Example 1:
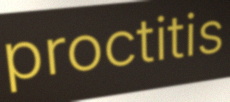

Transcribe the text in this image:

proctitis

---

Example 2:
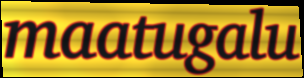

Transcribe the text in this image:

maatugalu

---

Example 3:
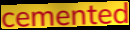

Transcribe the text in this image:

cemented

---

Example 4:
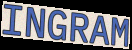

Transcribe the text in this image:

INGRAM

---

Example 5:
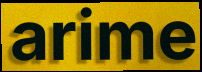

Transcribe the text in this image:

arime